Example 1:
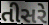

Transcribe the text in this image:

તીસરે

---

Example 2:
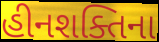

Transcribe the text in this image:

હીનશક્તિના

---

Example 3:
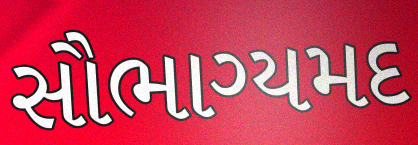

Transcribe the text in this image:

સૌભાગ્યમદ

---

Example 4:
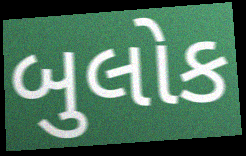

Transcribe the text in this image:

બુલોક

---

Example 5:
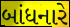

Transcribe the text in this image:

બાંધનારે